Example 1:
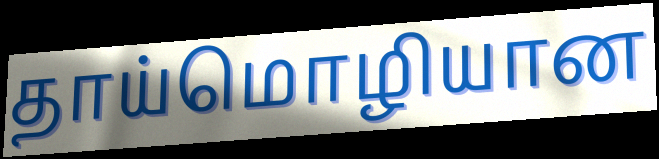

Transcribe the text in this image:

தாய்மொழியான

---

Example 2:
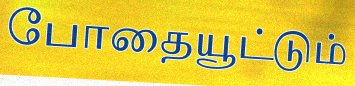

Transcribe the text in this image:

போதையூட்டும்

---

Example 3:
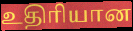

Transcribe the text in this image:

உதிரியான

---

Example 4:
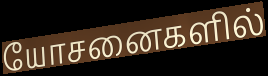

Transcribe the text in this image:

யோசனைகளில்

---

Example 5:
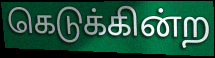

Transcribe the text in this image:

கெடுக்கின்ற